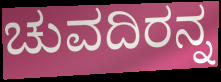
ಚುವದಿರನ್ನ